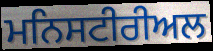
ਮਨਿਸਟੀਰੀਅਲ